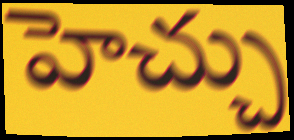
హెచ్చు